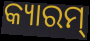
କ୍ୟାରମ୍